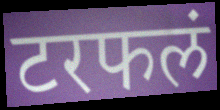
टरफलं